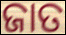
ଜାତ